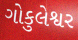
ગોકુલેશ્વર